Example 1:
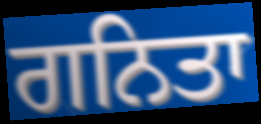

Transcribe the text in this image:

ਗਨਿਤਾ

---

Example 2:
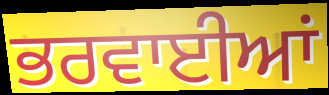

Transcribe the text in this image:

ਭਰਵਾਈਆਂ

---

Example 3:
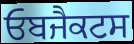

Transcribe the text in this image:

ਓਬਜੈਕਟਸ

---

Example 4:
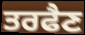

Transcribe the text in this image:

ਤਰਫੈਣ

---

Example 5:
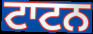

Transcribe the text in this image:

ਟਾਟਨ